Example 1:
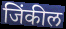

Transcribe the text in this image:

जिंकील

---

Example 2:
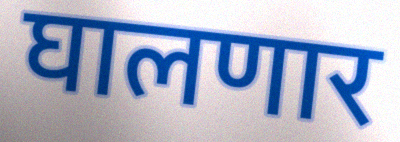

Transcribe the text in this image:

घालणार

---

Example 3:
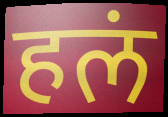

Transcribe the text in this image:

हलं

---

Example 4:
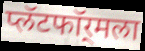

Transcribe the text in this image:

प्लॅटफॉर्मला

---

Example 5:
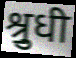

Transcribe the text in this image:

श्रु॒धी